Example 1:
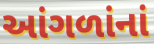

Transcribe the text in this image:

આંગળાંનાં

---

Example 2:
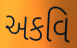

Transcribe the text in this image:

અકવિ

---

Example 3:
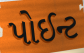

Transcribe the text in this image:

પોઈન્ટ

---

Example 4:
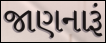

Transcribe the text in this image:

જાણનારૂં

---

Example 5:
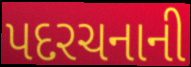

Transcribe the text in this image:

પદરચનાની